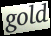
gold